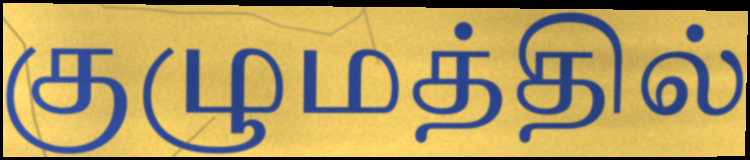
குழுமத்தில்